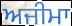
ਅਜੀਮਾ